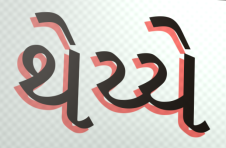
થેય્યે